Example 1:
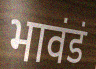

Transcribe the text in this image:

भावंडं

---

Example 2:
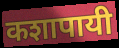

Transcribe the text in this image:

कशापायी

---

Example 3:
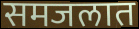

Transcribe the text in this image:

समजलात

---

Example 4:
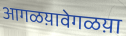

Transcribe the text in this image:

आगळय़ावेगळय़ा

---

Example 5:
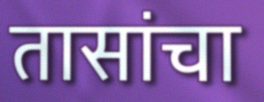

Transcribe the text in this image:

तासांचा